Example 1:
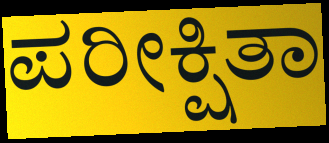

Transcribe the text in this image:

ಪರೀಕ್ಷಿತಾ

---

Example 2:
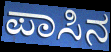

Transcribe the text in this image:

ಪಾಸಿನ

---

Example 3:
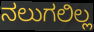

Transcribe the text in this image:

ನಲುಗಲಿಲ್ಲ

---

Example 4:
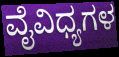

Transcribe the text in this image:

ವೈವಿಧ್ಯಗಳ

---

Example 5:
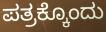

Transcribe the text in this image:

ಪತ್ರಕ್ಕೊಂದು